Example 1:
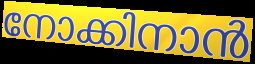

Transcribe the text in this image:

നോക്കിനാൻ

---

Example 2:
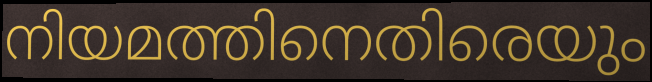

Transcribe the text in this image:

നിയമത്തിനെതിരെയും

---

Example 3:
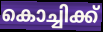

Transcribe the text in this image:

കൊച്ചിക്ക്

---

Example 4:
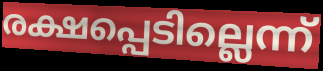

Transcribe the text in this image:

രക്ഷപ്പെടില്ലെന്ന്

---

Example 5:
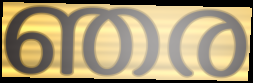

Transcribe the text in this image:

ഞര